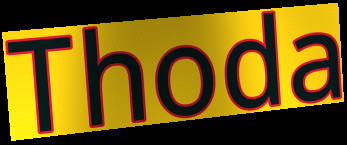
Thoda